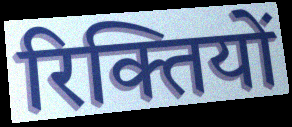
रिक्तियों